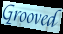
Grooved